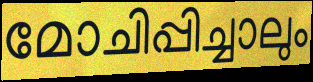
മോചിപ്പിച്ചാലും